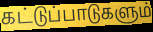
கட்டுப்பாடுகளும்